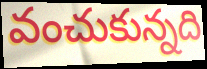
వంచుకున్నది